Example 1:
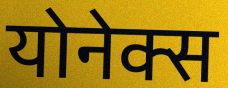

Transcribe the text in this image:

योनेक्स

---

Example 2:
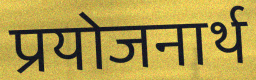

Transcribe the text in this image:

प्रयोजनार्थ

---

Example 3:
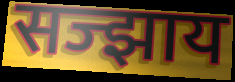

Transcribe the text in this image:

सज्झाय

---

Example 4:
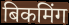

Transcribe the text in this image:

बिकमिंग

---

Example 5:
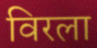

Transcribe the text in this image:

विरला